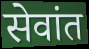
सेवांत